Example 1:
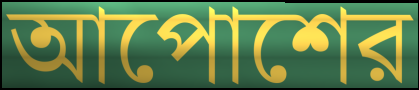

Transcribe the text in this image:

আপোশের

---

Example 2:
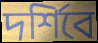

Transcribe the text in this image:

দর্শিবে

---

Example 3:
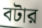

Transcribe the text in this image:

বটার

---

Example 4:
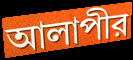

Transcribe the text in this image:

আলাপীর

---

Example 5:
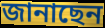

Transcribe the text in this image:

জানাছেন